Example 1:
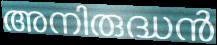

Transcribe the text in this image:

അനിരുദ്ധൻ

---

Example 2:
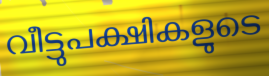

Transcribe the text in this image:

വീട്ടുപക്ഷികളുടെ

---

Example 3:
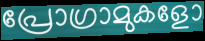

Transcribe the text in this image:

പ്രോഗ്രാമുകളോ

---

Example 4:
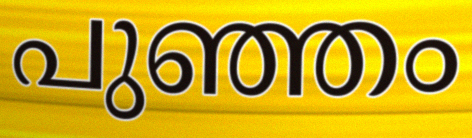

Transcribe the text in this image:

പുഞ്ഞം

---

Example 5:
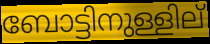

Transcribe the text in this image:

ബോട്ടിനുള്ളില്